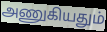
அணுகியதும்